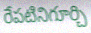
రేపటినిగూర్చి